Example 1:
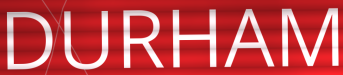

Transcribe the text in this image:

DURHAM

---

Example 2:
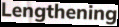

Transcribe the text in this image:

Lengthening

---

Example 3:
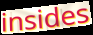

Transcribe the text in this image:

insides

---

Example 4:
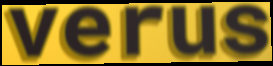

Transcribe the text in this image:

verus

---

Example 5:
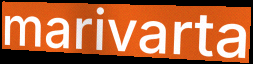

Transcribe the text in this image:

marivarta